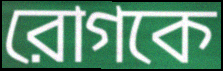
রোগকে